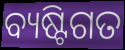
ବ୍ୟଷ୍ଟିଗତ